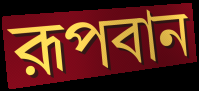
রূপবান